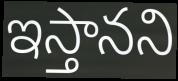
ఇస్తానని